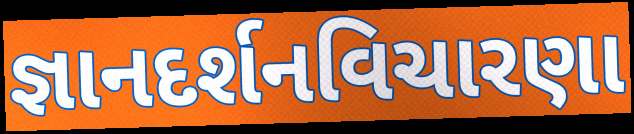
જ્ઞાનદર્શનવિચારણા